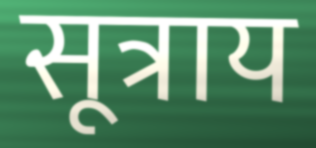
सूत्राय